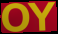
OY